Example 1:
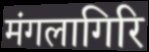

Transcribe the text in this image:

मंगलागिरि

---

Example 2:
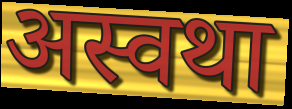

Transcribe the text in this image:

अस्वथा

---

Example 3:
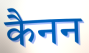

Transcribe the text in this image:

कैनन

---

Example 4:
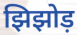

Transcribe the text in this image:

झिझोड़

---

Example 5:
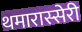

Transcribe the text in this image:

थमारास्सेरी